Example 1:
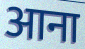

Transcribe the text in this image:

आना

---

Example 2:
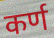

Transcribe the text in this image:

कर्ण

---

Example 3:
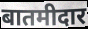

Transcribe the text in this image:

बातमीदार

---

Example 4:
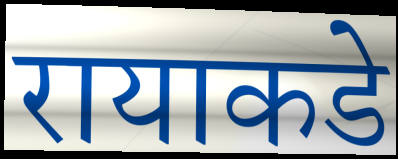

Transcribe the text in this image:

रायाकडे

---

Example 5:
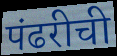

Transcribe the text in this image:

पंढरीची